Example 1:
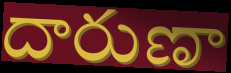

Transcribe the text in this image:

దారుణా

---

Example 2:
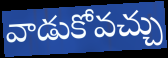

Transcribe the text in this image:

వాడుకోవచ్చు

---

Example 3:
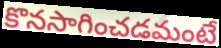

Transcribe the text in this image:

కొనసాగించడమంటే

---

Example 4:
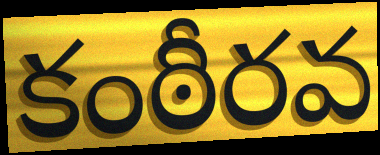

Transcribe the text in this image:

కంఠీరవ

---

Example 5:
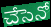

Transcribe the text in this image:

చేసెనో